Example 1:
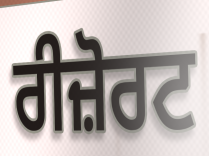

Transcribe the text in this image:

ਰੀਜ਼ੋਰਟ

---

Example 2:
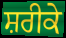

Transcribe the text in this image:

ਸ਼ਰੀਕੇ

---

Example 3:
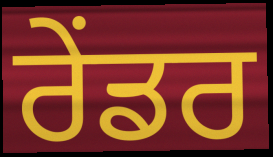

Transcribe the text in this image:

ਰੇੰਡਰ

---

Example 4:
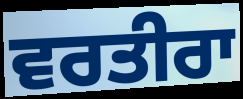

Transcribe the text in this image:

ਵਰਤੀਰਾ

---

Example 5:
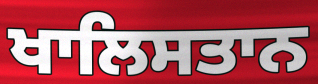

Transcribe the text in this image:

ਖਾਲਿਸਤਾਨ